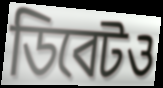
ডিবেটও